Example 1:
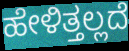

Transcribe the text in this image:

ಹೇಳಿತ್ತಲ್ಲದೆ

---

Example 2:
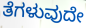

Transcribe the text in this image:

ತೆಗಳುವುದೇ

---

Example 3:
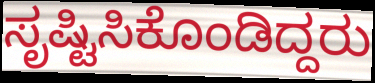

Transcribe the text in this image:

ಸೃಷ್ಟಿಸಿಕೊಂಡಿದ್ದರು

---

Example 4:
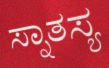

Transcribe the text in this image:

ಸ್ನಾತಸ್ಯ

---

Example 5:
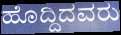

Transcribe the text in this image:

ಹೊದ್ದಿದವರು